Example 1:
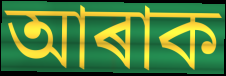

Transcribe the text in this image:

আৰাক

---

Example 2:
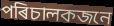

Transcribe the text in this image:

পৰিচালকজনে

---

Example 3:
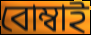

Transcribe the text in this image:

বোম্বাই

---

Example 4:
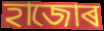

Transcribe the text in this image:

হাজোৰ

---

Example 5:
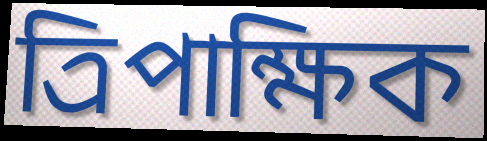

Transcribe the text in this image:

ত্ৰিপাক্ষিক